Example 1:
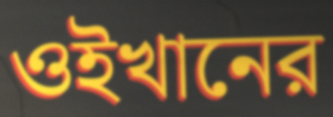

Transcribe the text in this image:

ওইখানের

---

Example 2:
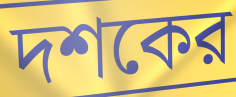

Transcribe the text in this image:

দশকের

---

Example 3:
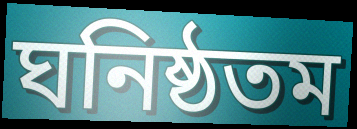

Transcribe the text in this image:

ঘনিষ্ঠতম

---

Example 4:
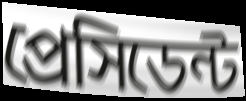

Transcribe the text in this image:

প্রেসিডেন্ট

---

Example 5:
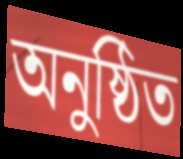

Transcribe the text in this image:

অনুষ্ঠিত